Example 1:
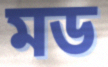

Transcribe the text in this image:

মড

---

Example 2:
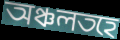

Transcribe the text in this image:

অঞ্চলতহে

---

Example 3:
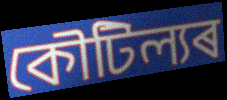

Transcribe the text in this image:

কৌটিল্যৰ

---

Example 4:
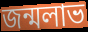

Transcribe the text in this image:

জন্মলাভ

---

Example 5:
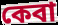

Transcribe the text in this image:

কেবা